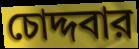
চোদ্দবার